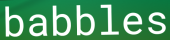
babbles